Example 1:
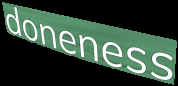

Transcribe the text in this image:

doneness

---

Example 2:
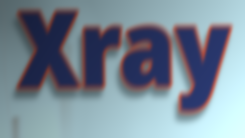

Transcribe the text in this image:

Xray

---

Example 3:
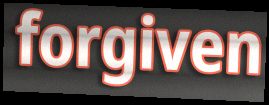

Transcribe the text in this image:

forgiven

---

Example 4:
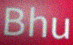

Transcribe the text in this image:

Bhu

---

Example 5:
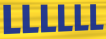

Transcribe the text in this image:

LLLLLL